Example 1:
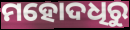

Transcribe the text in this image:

ମହୋଦଧିରୁ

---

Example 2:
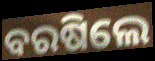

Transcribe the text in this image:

ବରଷିଲେ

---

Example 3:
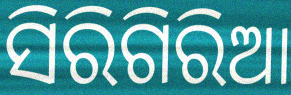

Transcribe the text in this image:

ସିରିଗିରିଆ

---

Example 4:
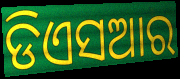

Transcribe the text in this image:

ଡିଏସଆର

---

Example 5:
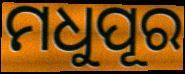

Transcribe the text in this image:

ମଧୁପୂର